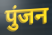
पुंजन